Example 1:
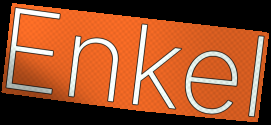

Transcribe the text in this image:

Enkel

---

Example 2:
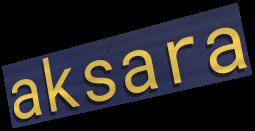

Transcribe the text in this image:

aksara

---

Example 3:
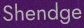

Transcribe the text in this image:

Shendge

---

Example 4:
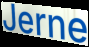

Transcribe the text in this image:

Jerne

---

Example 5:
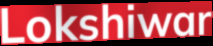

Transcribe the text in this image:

Lokshiwar